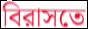
বিরাসতে